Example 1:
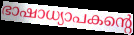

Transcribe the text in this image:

ഭാഷാധ്യാപകന്റെ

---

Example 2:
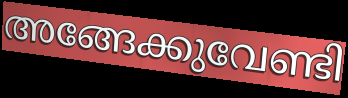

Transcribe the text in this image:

അങ്ങേക്കുവേണ്ടി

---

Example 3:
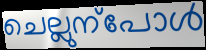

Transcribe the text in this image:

ചെല്ലുന്പോൾ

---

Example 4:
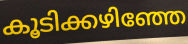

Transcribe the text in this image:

കൂടിക്കഴിഞ്ഞേ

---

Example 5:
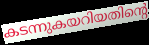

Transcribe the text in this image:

കടന്നുകയറിയതിന്റെ